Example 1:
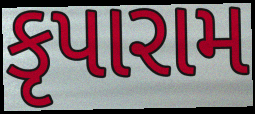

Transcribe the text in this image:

કૃપારામ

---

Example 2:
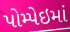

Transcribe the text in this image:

પોમ્પેઇમાં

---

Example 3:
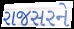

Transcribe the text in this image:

રાજસરને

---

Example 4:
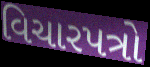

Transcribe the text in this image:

વિચારપત્રો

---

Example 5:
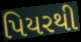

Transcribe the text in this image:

પિયરથી